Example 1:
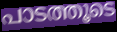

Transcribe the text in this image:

പാടത്തൂടെ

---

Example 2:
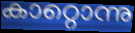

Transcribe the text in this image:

കാറ്റൊന്നു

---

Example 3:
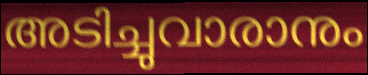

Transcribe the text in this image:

അടിച്ചുവാരാനും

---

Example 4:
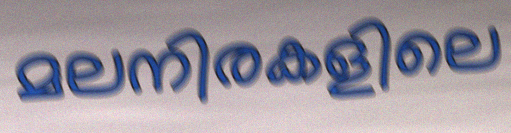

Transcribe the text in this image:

മലനിരകളിലെ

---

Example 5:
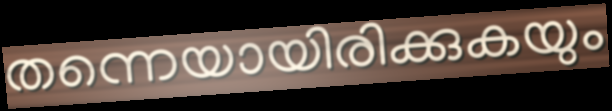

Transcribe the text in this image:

തന്നെയായിരിക്കുകയും